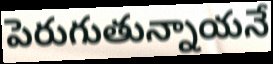
పెరుగుతున్నాయనే